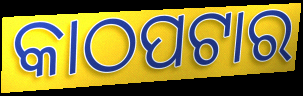
କାଠପଟାର